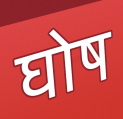
घोष